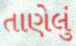
તાણેલું